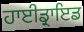
ਹਾਈਡ੍ਰਾਇਡ